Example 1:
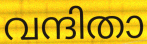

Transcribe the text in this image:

വന്ദിതാ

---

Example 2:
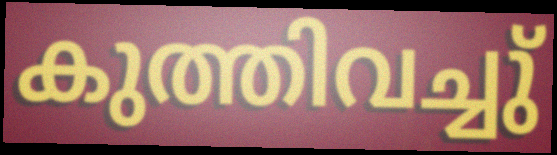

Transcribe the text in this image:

കുത്തിവച്ചു്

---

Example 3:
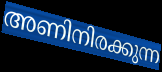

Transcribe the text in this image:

അണിനിരക്കുന്ന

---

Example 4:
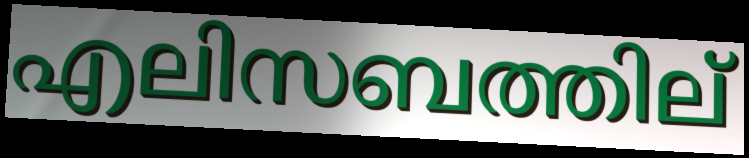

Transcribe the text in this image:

എലിസബത്തില്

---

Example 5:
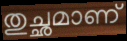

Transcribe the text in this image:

തുച്ഛമാണ്